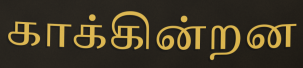
காக்கின்றன